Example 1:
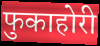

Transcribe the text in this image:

फुकाहोरी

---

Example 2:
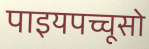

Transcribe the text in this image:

पाइयपच्चूसो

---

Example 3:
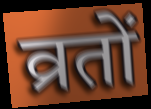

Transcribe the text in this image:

व्रतों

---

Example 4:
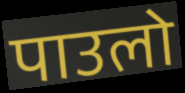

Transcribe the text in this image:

पाउलो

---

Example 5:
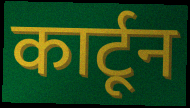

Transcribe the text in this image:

कार्टून